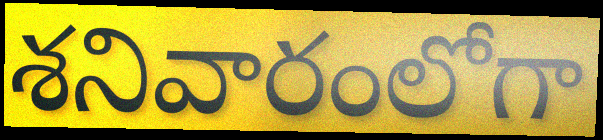
శనివారంలోగా